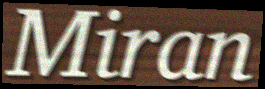
Miran